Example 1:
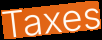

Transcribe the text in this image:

Taxes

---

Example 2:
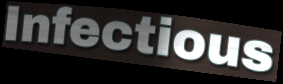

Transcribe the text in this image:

Infectious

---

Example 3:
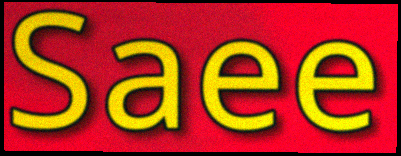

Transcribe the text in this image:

Saee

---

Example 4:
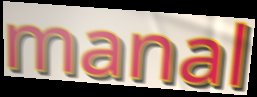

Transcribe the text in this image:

manal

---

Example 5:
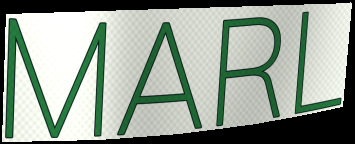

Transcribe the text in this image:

MARL